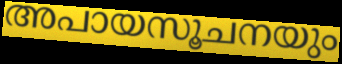
അപായസൂചനയും